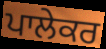
ਪਾਲੇਕਰ